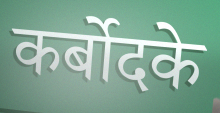
कर्बोदके